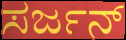
ಸರ್ಜನ್